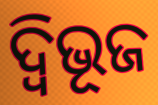
ଦ୍ବିଭୂଜ